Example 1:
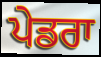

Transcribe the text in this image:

ਪੇਡਰਾ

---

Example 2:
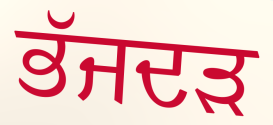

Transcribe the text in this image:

ਭੱਜਦੜ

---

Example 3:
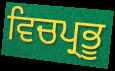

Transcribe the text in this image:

ਵਿਚਪ੍ਰਭੂ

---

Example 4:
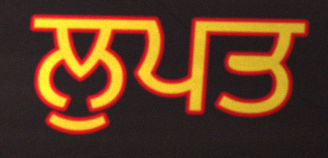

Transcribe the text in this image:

ਲੁਪਤ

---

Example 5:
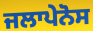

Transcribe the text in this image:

ਜਲਾਪੇਨੋਸ